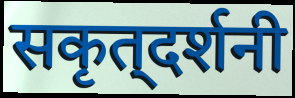
सकृत्‌दर्शनी